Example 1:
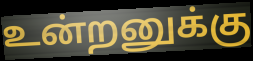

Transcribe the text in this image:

உன்றனுக்கு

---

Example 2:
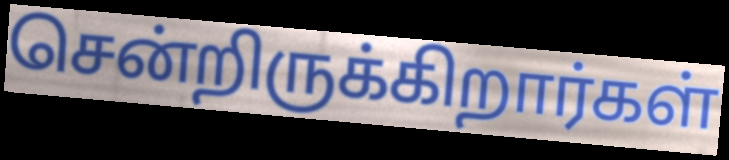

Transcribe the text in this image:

சென்றிருக்கிறார்கள்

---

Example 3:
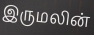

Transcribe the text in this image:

இருமலின்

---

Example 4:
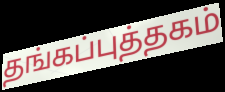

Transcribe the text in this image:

தங்கப்புத்தகம்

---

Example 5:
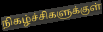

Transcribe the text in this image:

நிகழ்ச்சிகளுக்குள்